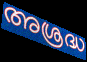
അശ്രദ്ധ